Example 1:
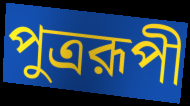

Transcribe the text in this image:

পুত্ররূপী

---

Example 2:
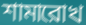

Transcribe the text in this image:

শামারোখ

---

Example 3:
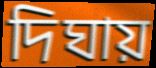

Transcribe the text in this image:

দিঘায়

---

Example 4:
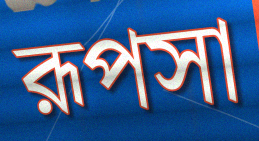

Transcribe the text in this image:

রূপসা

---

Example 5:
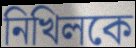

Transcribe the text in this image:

নিখিলকে